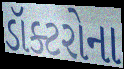
ડૉક્ટરોના